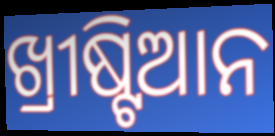
ଖ୍ରୀଷ୍ଟିଆନ